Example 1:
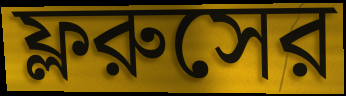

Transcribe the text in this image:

ফ্লরুসের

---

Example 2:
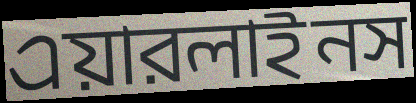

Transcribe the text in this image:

এয়ারলাইনস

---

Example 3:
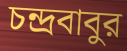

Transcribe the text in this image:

চন্দ্রবাবুর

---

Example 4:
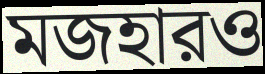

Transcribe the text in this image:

মজহারও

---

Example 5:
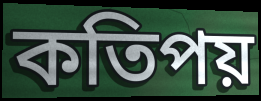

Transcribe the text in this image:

কতিপয়